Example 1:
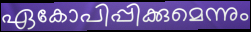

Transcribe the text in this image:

ഏകോപിപ്പിക്കുമെന്നും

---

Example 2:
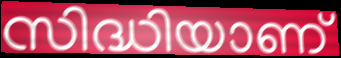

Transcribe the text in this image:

സിദ്ധിയാണ്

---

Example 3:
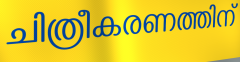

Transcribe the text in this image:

ചിത്രീകരണത്തിന്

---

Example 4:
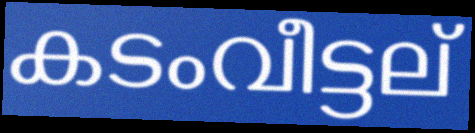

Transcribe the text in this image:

കടംവീട്ടല്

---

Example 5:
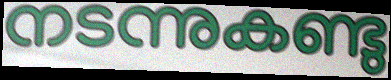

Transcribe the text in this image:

നടന്നുകണ്ടു